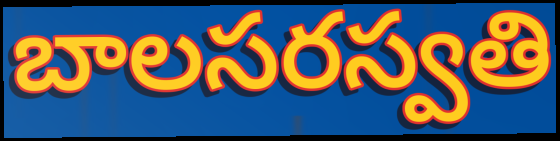
బాలసరస్వతి